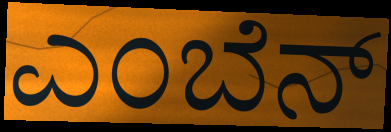
ಎಂಬೆನ್